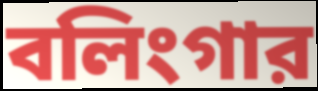
বলিংগার